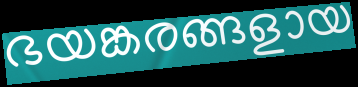
ഭയങ്കരങ്ങളായ